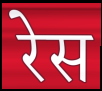
रेस